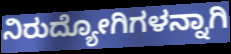
ನಿರುದ್ಯೋಗಿಗಳನ್ನಾಗಿ